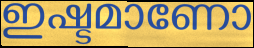
ഇഷ്ടമാണോ